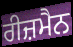
ਰੀਜ਼ਮੈਨ